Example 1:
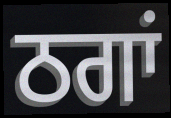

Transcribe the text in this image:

ਠਗਾਂ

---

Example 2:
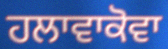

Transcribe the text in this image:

ਹਲਾਵਾਕੋਵਾ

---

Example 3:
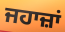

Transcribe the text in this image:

ਜਹਾਜ਼ਾਂ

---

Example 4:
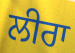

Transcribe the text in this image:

ਲੀਰਾ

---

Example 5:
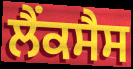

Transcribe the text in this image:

ਲੈਂਕਸੈਸ